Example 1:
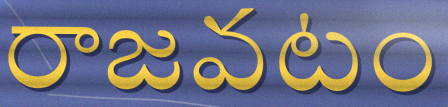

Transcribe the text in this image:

రాజవటం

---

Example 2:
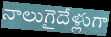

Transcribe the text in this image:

నాలుగైదేళ్లుగా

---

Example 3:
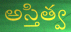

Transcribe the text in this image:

అస్తిత్వ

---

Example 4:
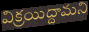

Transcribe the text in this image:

విక్రయిద్దామని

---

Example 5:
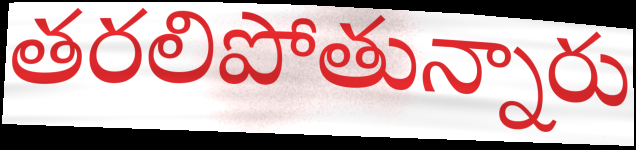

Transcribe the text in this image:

తరలిపోతున్నారు